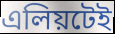
এলিয়টেই